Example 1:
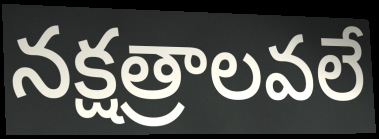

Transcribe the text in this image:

నక్షత్రాలవలే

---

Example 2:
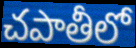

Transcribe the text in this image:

చపాతీలో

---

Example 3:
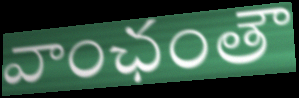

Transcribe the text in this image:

వాంఛంతౌ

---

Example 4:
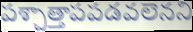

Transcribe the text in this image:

పశ్చాత్తాపపడవలెనని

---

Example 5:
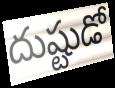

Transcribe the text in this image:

దుష్టుడో